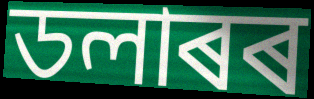
ডলাৰৰ